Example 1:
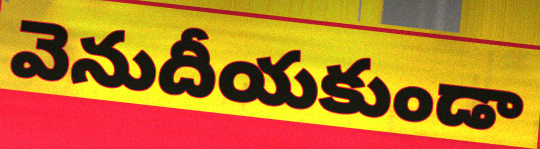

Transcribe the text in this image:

వెనుదీయకుండా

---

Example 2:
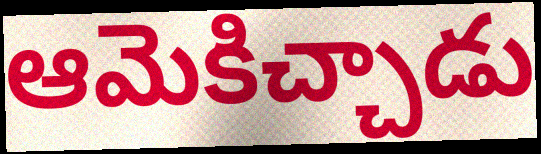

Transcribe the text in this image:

ఆమెకిచ్చాడు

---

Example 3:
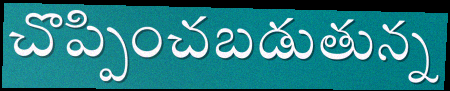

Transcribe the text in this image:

చొప్పించబడుతున్న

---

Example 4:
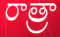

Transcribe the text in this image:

రాత్రా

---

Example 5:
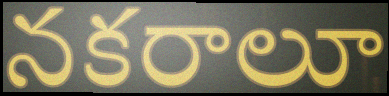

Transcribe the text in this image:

నకరాలూ